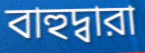
বাহুদ্বারা